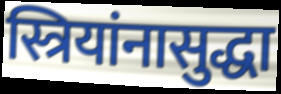
स्त्रियांनासुद्धा